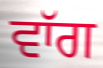
ਵਾੱਗ